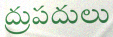
ద్రుపదులు